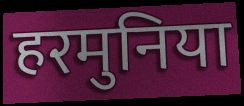
हरमुनिया